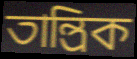
তান্ত্রিক